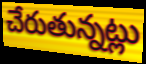
చేరుతున్నట్లు